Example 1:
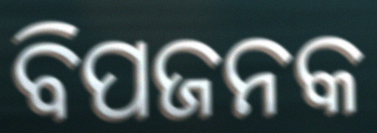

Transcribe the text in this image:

ବିପଜନକ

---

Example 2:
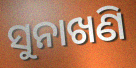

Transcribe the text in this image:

ସୁନାଖଣି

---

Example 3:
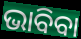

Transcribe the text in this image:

ଭାବିବା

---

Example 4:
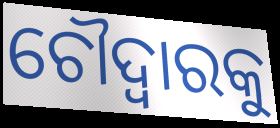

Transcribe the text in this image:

ଚୌଦ୍ୱାରକୁ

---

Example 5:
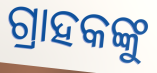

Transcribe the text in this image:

ଗ୍ରାହକଙ୍କୁ